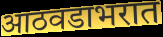
आठवडाभरात